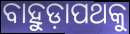
ବାହୁଡ଼ାପଥକୁ